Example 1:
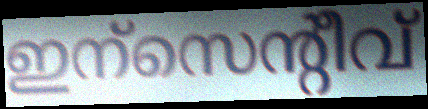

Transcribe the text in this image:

ഇന്സെന്റീവ്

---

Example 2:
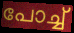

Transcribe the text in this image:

പോച്ച്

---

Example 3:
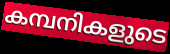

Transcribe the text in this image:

കമ്പനികളുടെ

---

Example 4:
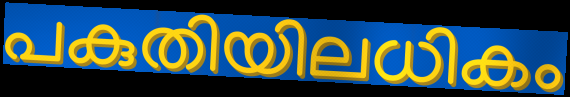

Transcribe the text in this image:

പകുതിയിലധികം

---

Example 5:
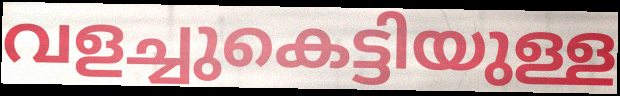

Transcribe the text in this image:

വളച്ചുകെട്ടിയുള്ള